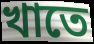
খাতে